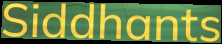
Siddhants